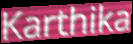
Karthika